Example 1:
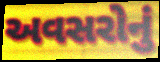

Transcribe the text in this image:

અવસરોનું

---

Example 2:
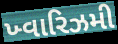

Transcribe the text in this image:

ખ્વારિઝમી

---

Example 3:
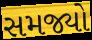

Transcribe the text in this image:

સમજ્યો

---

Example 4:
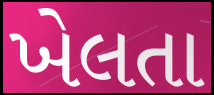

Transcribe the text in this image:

ખેલતા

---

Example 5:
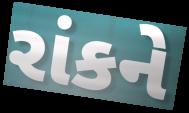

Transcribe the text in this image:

રાંકને